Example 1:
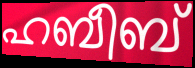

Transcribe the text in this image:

ഹബീബ്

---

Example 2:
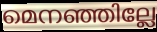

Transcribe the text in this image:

മെനഞ്ഞില്ലേ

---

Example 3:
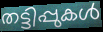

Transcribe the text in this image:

തട്ടിപ്പുകൾ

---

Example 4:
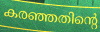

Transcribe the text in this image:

കരഞ്ഞതിന്റെ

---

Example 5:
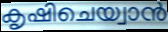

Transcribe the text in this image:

കൃഷിചെയ്വാൻ